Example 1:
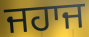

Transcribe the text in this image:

ਜਹਾਜ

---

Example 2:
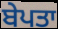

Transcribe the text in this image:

ਬੇਪਤਾ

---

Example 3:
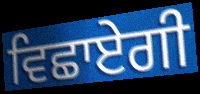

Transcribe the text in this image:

ਵਿਛਾਏਗੀ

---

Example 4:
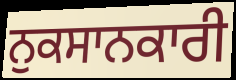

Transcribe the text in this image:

ਨੁਕਸਾਨਕਾਰੀ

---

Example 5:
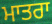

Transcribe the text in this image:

ਮਾਤਰਾ